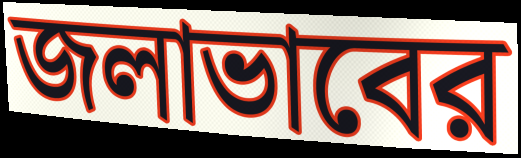
জলাভাবের